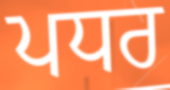
ਪਧਰ